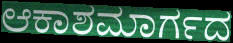
ಆಕಾಶಮಾರ್ಗದ